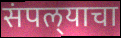
संपल्याचा